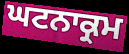
ਘਟਨਾਕ੍ਰਮ